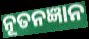
ନୂତନଜ୍ଞାନ